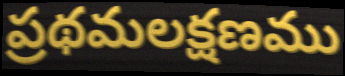
ప్రథమలక్షణము